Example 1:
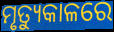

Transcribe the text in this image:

ମୃତ୍ୟୁକାଳରେ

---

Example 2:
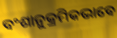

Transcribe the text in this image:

ବଂଶାନୁକ୍ରମିକଭାବେ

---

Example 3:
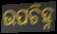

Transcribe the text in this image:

ଉପଚିହ୍ନ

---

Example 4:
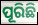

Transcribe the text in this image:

ପୂରିଛି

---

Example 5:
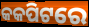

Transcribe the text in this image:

କକପିଟରେ